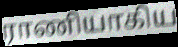
ராணியாகிய